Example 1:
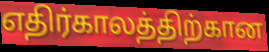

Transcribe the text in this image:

எதிர்காலத்திற்கான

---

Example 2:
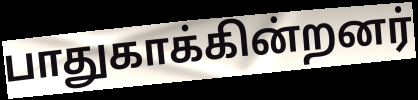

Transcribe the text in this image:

பாதுகாக்கின்றனர்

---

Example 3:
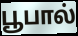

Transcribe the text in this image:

பூபால்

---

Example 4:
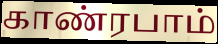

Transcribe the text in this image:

காண்ரபாம்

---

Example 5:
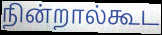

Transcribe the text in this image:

நின்றால்கூட